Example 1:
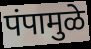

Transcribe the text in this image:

पंपामुळे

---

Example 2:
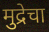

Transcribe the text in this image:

मुद्रेचा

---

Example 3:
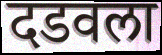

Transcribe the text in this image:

दडवला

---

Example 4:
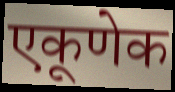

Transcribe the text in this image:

एकूणेक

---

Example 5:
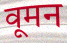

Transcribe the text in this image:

वूमन